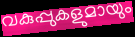
വകുപ്പുകളുമായും